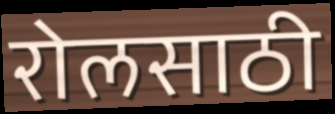
रोलसाठी